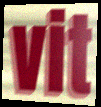
vit